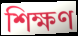
শিক্ষণ